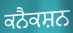
ਕਨੈਕਸ਼ਨ